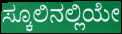
ಸ್ಕೂಲಿನಲ್ಲಿಯೇ